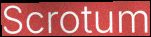
Scrotum